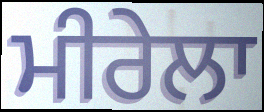
ਮੀਰੇਲਾ